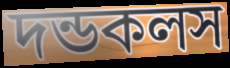
দন্ডকলস